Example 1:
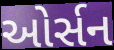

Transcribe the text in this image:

ઓર્સન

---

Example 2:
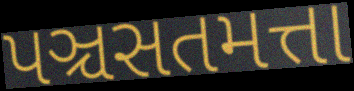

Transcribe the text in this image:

પઞ્ચસતમત્તા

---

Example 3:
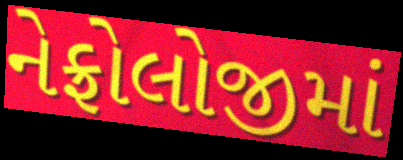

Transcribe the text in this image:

નેફ્રોલોજીમાં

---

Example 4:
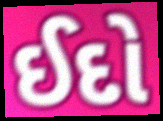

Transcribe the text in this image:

ઈદો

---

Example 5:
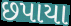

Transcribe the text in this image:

છપાયા